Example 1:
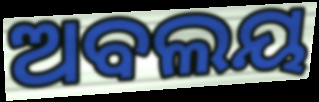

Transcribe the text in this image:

ଅବଲୟ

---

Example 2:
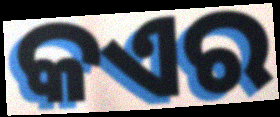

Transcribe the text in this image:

କଏର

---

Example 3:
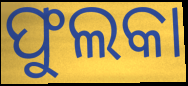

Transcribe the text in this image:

ଫୁଲକା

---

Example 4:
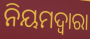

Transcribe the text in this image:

ନିୟମଦ୍ଵାରା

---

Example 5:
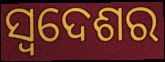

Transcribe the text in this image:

ସ୍ଵଦେଶର